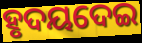
ହୃଦୟଦେଇ